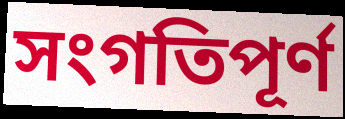
সংগতিপূৰ্ণ